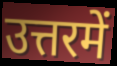
उत्तरमें